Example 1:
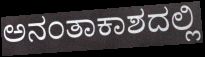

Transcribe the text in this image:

ಅನಂತಾಕಾಶದಲ್ಲಿ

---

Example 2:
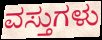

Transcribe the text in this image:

ವಸ್ತುಗಳು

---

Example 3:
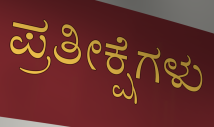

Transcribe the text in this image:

ಪ್ರತೀಕ್ಷೆಗಳು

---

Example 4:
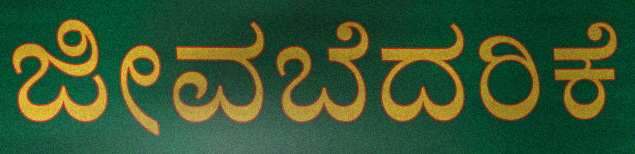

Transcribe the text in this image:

ಜೀವಬೆದರಿಕೆ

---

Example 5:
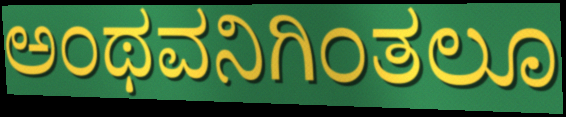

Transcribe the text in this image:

ಅಂಥವನಿಗಿಂತಲೂ